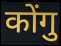
कोंगु